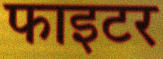
फाइटर